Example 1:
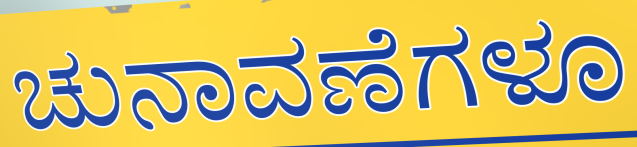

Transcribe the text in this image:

ಚುನಾವಣೆಗಳೂ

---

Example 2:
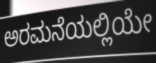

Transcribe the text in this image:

ಅರಮನೆಯಲ್ಲಿಯೇ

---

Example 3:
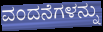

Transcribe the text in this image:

ವಂದನೆಗಳನ್ನು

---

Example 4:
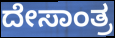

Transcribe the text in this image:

ದೇಸಾಂತ್ರ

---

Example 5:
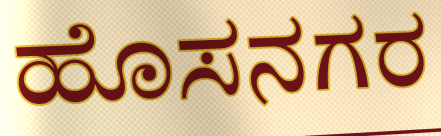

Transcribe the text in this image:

ಹೊಸನಗರ